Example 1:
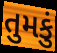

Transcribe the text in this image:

તુમકું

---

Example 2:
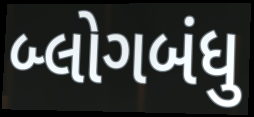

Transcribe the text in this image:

બ્લોગબંધુ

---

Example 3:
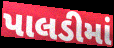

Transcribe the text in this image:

પાલડીમાં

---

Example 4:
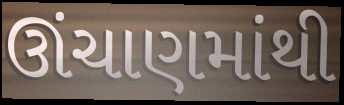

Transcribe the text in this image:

ઊંચાણમાંથી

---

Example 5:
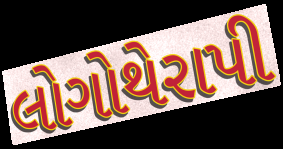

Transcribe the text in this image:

લોગોથેરાપી